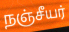
நஞ்சீயர்